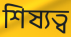
শিষ্যত্ব